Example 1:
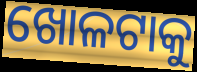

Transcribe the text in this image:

ଖୋଳଟାକୁ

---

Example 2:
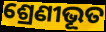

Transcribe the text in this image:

ଶ୍ରେଣୀଭୂତ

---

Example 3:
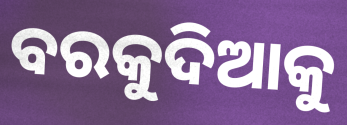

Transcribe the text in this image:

ବରକୁଦିଆକୁ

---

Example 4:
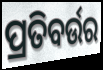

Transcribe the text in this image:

ପ୍ରତିବର୍ଉର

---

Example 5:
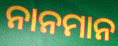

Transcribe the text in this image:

ନାନମାନ